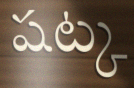
షట్క